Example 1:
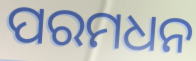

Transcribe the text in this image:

ପରମଧନ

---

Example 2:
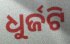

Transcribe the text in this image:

ଧୁର୍ଜଟି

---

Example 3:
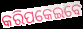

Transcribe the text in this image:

କରିପକେଇବେ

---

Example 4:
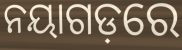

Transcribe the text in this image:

ନୟାଗଡ଼ରେ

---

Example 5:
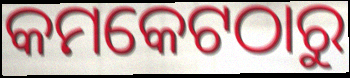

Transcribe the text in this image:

କମକେଟଠାରୁ